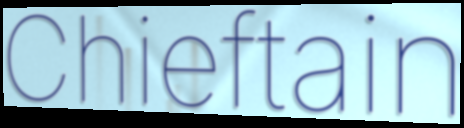
Chieftain